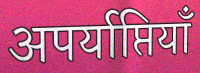
अपर्याप्तियाँ